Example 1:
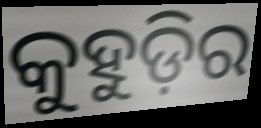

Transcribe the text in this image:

କୁହୁଡ଼ିର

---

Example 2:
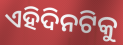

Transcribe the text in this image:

ଏହିଦିନଟିକୁ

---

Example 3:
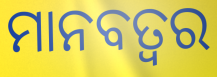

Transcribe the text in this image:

ମାନବତ୍ୱର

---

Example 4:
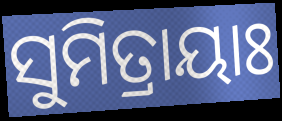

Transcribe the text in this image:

ସୁମିତ୍ରାୟାଃ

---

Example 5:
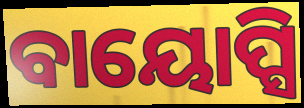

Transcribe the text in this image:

ବାୟୋପ୍ସି